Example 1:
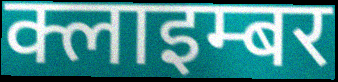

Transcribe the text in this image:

क्लाइम्बर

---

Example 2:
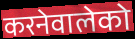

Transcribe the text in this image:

करनेवालेको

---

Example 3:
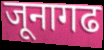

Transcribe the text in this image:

जूनागढ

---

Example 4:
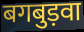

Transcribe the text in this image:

बगबुड़वा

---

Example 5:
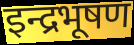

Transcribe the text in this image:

इन्द्रभूषण